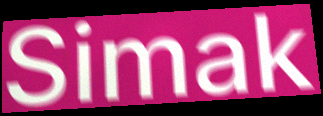
Simak